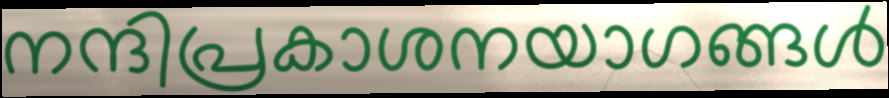
നന്ദിപ്രകാശനയാഗങ്ങൾ